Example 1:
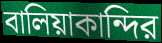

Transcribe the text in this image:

বালিয়াকান্দির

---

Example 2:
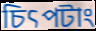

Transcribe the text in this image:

চিৎপটাং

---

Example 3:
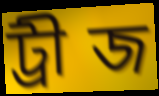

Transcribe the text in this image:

ট্রীজ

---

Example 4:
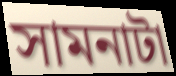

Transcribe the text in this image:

সামনাটা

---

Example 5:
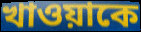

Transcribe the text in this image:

খাওয়াকে